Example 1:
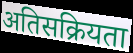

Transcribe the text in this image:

अतिसक्रियता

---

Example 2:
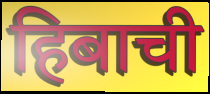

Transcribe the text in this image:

हिबाची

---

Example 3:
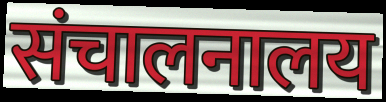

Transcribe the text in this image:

संचालनालय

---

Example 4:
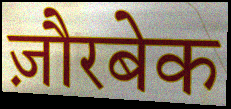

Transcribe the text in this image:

ज़ौरबेक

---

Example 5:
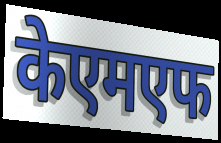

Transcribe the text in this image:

केएमएफ